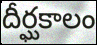
దీర్ఘకాలం